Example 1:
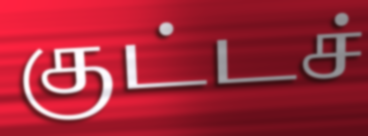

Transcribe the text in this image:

குட்டச்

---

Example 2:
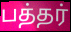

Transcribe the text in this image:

பத்தர்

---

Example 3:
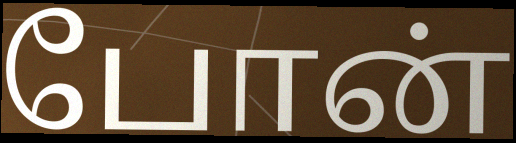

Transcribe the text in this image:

போன்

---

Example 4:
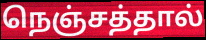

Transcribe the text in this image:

நெஞ்சத்தால்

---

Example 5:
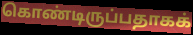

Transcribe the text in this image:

கொண்டிருப்பதாகக்